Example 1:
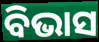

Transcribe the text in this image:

ବିଭାସ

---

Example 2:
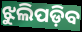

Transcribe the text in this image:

ଝୁଲିପଡ଼ିବ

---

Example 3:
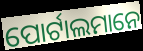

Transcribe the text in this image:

ପୋର୍ଟାଲମାନେ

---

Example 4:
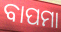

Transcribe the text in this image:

ବାପମା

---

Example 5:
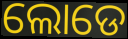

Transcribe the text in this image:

ଲୋଡେ